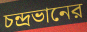
চন্দ্রভানের